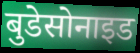
बुडेसोनाइड